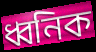
ধ্বনিক